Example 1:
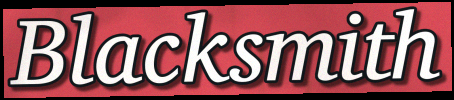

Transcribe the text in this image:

Blacksmith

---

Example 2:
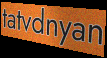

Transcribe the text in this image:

tatvdnyan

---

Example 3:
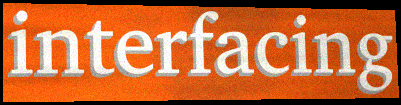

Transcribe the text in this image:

interfacing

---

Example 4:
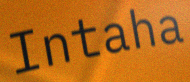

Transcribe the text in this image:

Intaha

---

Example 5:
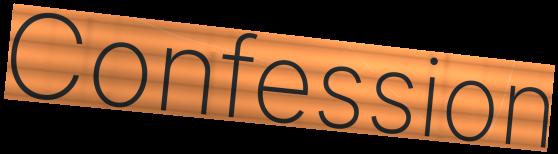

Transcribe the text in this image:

Confession